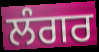
ਲੰਗਰ